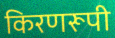
किरणरूपी